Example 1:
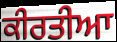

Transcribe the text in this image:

ਕੀਰਤੀਆ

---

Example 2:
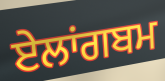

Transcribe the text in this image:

ਏਲਾਂਗਬਮ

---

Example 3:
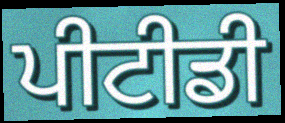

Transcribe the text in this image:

ਪੀਟੀਡੀ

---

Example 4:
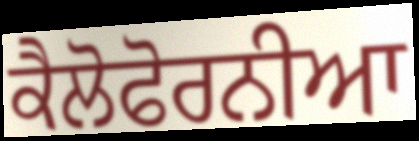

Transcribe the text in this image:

ਕੈਲੋਫੋਰਨੀਆ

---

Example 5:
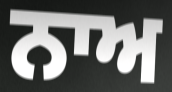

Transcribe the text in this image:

ਨਾਅ